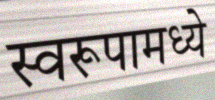
स्वरूपामध्ये